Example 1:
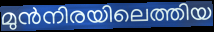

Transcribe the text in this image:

മുൻനിരയിലെത്തിയ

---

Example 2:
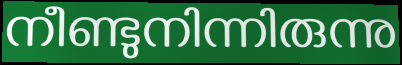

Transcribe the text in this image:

നീണ്ടുനിന്നിരുന്നു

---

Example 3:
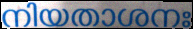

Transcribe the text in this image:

നിയതാശനഃ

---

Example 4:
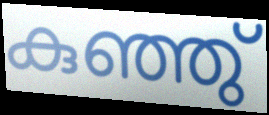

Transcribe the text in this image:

കുഞ്ഞു്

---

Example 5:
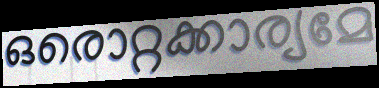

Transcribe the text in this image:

ഒരൊറ്റക്കാര്യമേ